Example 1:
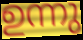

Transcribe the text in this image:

ഉന്നു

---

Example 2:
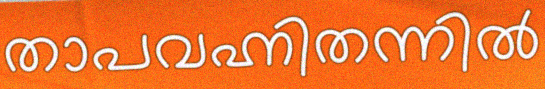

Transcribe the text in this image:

താപവഹ്നിതന്നിൽ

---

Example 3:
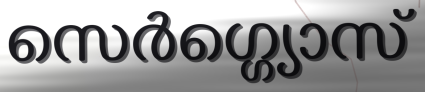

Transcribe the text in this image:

സെർഗ്ഗ്യൊസ്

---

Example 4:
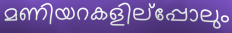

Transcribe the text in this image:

മണിയറകളില്പ്പോലും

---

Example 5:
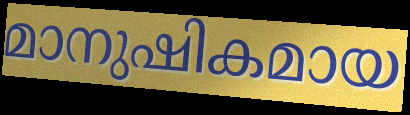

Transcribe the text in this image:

മാനുഷികമായ